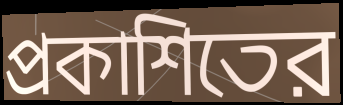
প্রকাশিতের